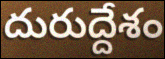
దురుద్దేశం